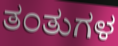
ತಂತುಗಳ